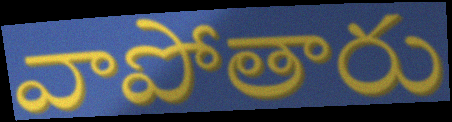
వాపోతారు